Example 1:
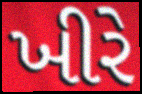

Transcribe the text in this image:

ખીરે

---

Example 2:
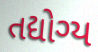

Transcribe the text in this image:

તદ્યોગ્ય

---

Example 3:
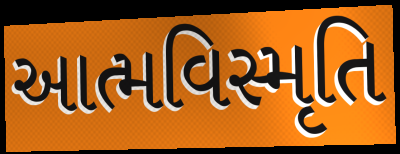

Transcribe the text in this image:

આત્મવિસ્મૃતિ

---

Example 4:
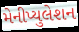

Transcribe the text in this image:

મેનીપ્યુલેશન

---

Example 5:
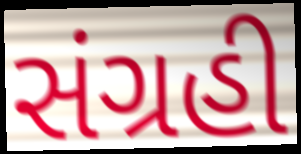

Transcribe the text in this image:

સંગ્રહી